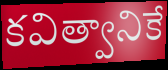
కవిత్వానికే